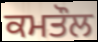
ਕਮਤੌਲ